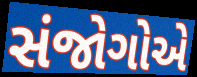
સંજોગોએ